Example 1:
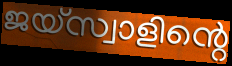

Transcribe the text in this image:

ജയ്സ്വാളിന്റെ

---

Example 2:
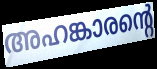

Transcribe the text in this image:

അഹങ്കാരന്റെ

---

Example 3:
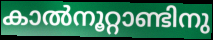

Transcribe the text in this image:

കാൽനൂറ്റാണ്ടിനു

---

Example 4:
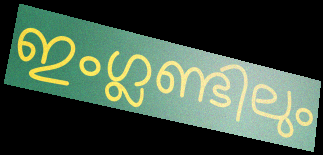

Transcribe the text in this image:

ഇംഗ്ലണ്ടിലും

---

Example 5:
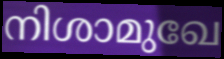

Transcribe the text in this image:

നിശാമുഖേ